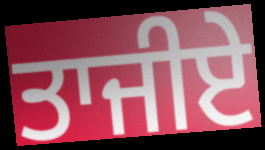
ਤਾਜੀਏ